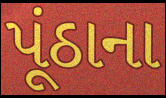
પૂંઠાના